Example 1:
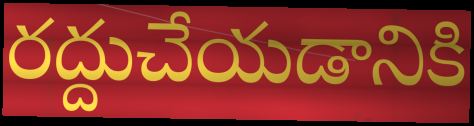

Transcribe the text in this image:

రద్దుచేయడానికి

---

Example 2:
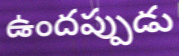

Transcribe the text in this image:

ఉందప్పుడు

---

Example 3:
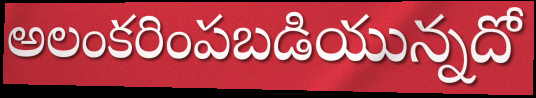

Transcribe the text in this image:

అలంకరింపబడియున్నదో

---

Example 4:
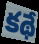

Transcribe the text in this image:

కథే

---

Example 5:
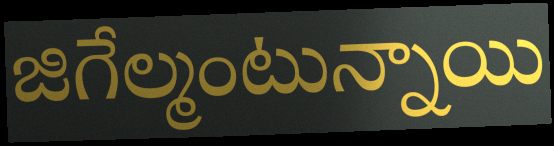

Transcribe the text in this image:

జిగేల్మంటున్నాయి